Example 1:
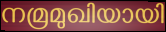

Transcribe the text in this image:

നമ്രമുഖിയായി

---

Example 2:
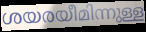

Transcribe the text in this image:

ശയരയീമിന്നുള്ള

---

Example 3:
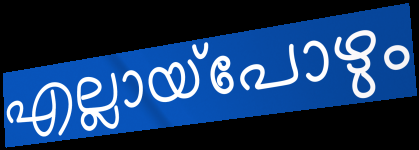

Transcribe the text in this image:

എല്ലായ്‌പോഴും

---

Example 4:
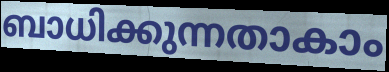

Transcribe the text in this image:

ബാധിക്കുന്നതാകാം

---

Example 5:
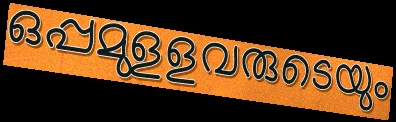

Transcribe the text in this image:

ഒപ്പമുളളവരുടെയും